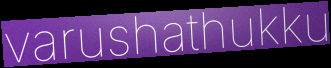
varushathukku